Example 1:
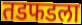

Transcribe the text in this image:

तडफडला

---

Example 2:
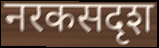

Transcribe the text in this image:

नरकसदृश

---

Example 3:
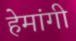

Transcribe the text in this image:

हेमांगी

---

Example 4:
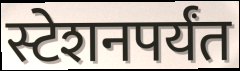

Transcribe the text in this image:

स्टेशनपर्यंत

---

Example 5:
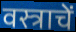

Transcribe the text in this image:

वस्त्राचें